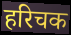
हरिचक